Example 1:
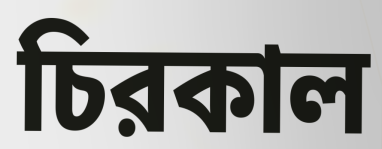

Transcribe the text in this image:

চিরকাল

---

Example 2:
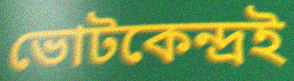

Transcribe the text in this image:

ভোটকেন্দ্রই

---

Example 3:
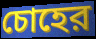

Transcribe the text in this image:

চোহের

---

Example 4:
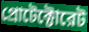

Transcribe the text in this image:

প্রোটেক্টোরেট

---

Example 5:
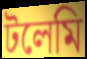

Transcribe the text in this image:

টলেমি